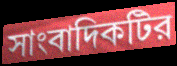
সাংবাদিকটির